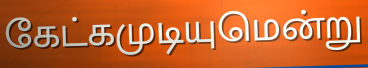
கேட்கமுடியுமென்று